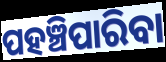
ପହଞ୍ଚିପାରିବା